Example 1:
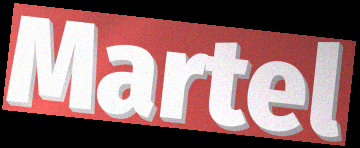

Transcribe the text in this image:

Martel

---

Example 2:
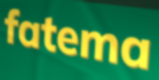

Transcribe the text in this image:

fatema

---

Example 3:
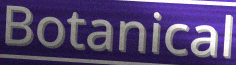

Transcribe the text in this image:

Botanical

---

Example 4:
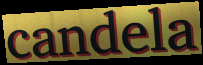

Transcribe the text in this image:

candela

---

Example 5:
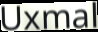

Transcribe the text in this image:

Uxmal